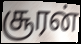
சூரன்